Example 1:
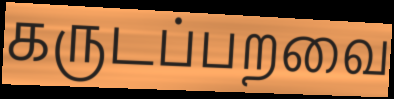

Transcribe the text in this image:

கருடப்பறவை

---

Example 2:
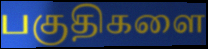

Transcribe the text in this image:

பகுதிகளை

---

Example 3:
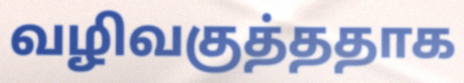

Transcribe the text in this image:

வழிவகுத்ததாக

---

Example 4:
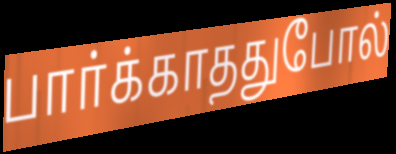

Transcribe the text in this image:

பார்க்காததுபோல்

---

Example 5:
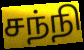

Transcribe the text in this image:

சந்நி